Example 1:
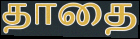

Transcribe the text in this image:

தாதை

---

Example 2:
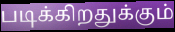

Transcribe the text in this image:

படிக்கிறதுக்கும்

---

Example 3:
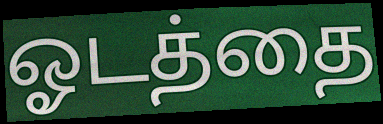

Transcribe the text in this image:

ஓடத்தை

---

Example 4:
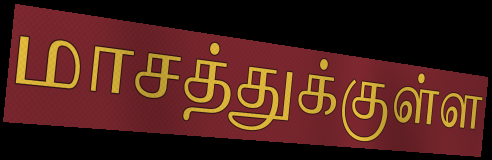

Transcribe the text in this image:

மாசத்துக்குள்ள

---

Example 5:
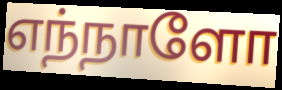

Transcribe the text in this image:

எந்நாளோ